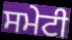
ਸਮੇਟੀ